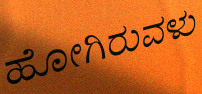
ಹೋಗಿರುವಳು